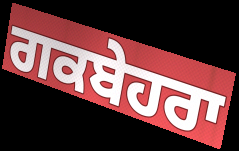
ਗਕਬੇਹਰਾ